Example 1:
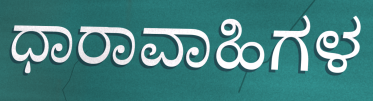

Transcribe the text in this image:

ಧಾರಾವಾಹಿಗಳ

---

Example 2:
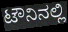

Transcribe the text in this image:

ಟೌನಿನಲ್ಲಿ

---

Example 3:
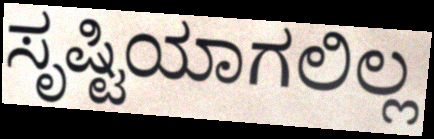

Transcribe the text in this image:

ಸೃಷ್ಟಿಯಾಗಲಿಲ್ಲ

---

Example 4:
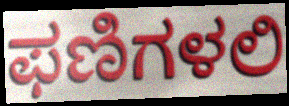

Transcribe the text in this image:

ಫಣಿಗಳಲಿ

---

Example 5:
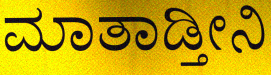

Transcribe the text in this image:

ಮಾತಾಡ್ತೀನಿ